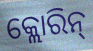
କ୍ଲୋରିନ୍